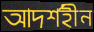
আদৰ্শহীন